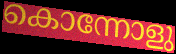
കൊന്നോളു